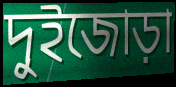
দুইজোড়া